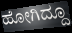
ಹೋಗಿದ್ದೂ